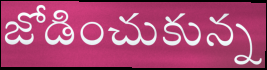
జోడించుకున్న